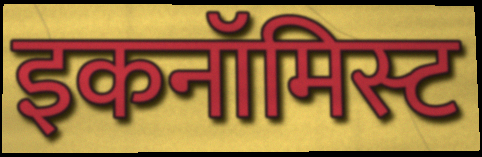
इकनॉमिस्‍ट